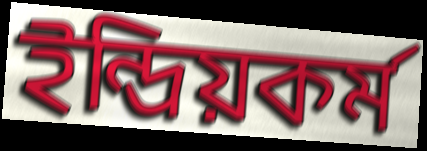
ইন্দ্রিয়কর্ম